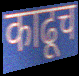
काढूच